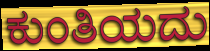
ಕುಂತಿಯದು